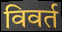
विवर्त